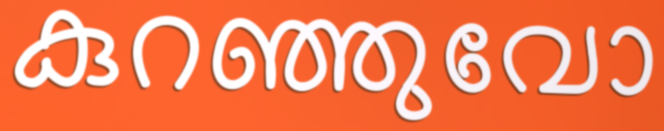
കുറഞ്ഞുവോ